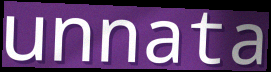
unnata